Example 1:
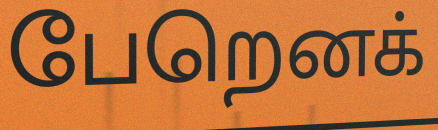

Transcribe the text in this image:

பேறெனக்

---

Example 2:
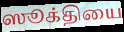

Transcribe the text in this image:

ஸூக்தியை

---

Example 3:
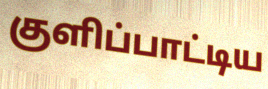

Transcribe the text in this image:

குளிப்பாட்டிய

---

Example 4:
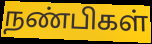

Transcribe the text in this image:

நண்பிகள்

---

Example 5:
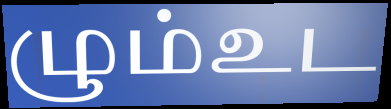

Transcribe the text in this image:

ழும்உட